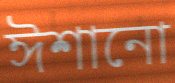
ঈশানো